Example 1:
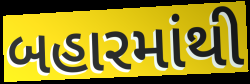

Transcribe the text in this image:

બહારમાંથી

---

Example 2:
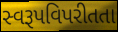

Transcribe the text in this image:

સ્વરૂપવિપરીતતા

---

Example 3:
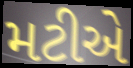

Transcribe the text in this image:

મટીએ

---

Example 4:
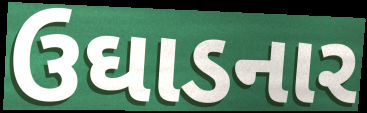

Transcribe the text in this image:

ઉઘાડનાર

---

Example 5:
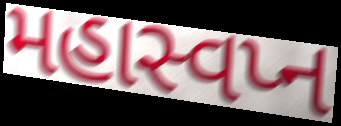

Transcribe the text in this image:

મહાસ્વપ્ન